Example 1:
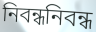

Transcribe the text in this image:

নিবন্ধনিবন্ধ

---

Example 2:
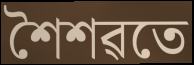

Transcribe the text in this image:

শৈশৱতে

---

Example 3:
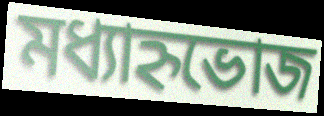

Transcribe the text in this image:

মধ্যাহ্নভোজ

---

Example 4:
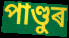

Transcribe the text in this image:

পাণ্ডুৰ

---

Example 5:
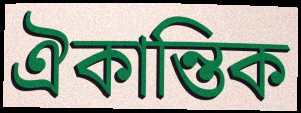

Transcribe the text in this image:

ঐকান্তিক